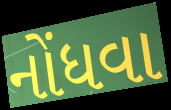
નોંધવા